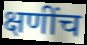
क्षणींच